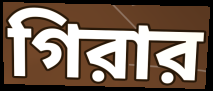
গিরার